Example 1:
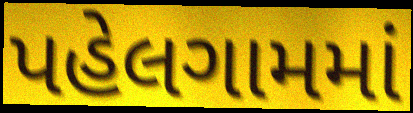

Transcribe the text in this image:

પહેલગામમાં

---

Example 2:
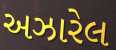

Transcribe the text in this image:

અઝારેલ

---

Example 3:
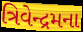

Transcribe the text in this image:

ત્રિવેન્દ્રમના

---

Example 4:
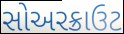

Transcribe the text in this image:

સોઅરક્રાઉટ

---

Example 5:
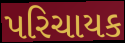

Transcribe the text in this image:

પરિચાયક